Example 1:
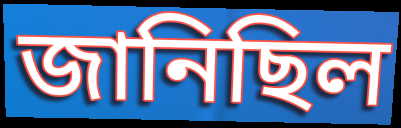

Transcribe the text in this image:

জানিছিল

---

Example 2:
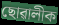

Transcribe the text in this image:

ছোৱালীক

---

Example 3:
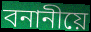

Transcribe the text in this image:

বনানীয়ে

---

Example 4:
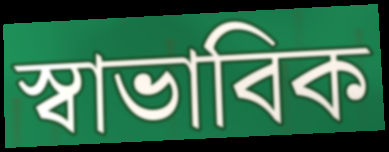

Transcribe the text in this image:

স্বাভাবিক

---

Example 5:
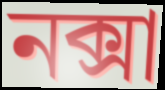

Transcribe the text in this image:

নক্সা